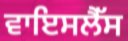
ਵਾਇਸਲੈੱਸ